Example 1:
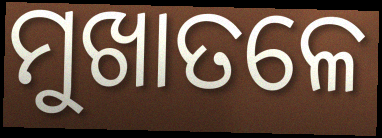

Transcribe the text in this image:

ମୁଖାତଳେ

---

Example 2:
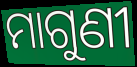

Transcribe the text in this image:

ମାଗୁଣୀ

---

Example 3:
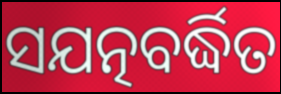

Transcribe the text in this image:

ସଯତ୍ନବର୍ଦ୍ଧିତ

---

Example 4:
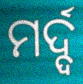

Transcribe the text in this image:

ମର୍ଦ୍ଦ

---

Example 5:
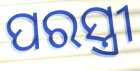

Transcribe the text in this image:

ପରସ୍ତ୍ରୀ